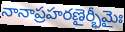
నానాప్రహరణైర్భీమైః